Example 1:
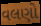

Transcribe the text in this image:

વલણો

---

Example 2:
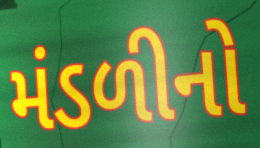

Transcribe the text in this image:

મંડળીનો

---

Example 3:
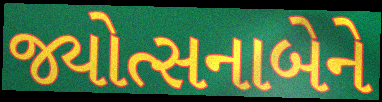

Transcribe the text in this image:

જ્યોત્સનાબેને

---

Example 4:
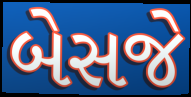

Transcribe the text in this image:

બેસજે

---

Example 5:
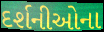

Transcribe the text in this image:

દર્શનીઓના